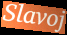
Slavoj